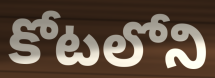
కోటలోని